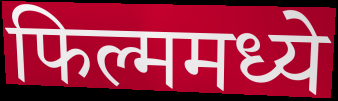
फिल्ममध्ये